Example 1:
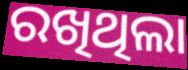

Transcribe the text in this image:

ରଖିଥିଲା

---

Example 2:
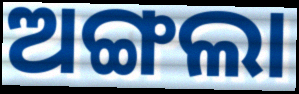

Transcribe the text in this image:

ଅଙ୍ଗଲା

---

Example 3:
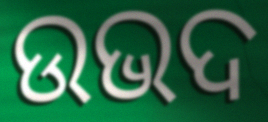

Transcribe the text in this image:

ଉଭଦ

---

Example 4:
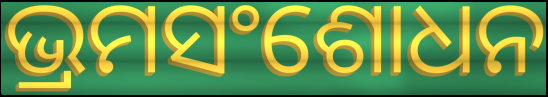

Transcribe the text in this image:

ଭ୍ରମସଂଶୋଧନ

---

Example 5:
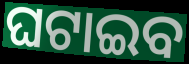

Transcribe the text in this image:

ଘଟାଇବ